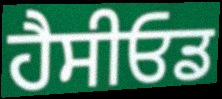
ਹੈਸੀਓਡ